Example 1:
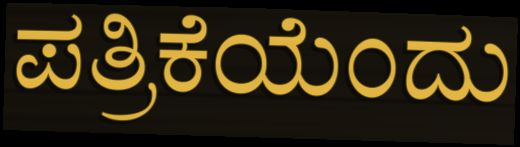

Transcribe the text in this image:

ಪತ್ರಿಕೆಯೆಂದು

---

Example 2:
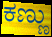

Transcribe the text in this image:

ಕಣ್ಣು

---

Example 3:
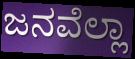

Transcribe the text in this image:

ಜನವೆಲ್ಲಾ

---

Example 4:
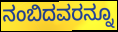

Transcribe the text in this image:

ನಂಬಿದವರನ್ನೂ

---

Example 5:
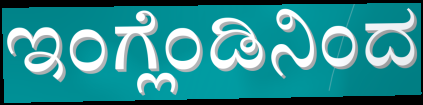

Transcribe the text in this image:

ಇಂಗ್ಲೆಂಡಿನಿಂದ